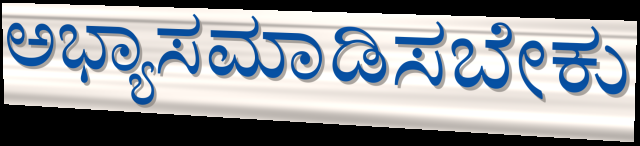
ಅಭ್ಯಾಸಮಾಡಿಸಬೇಕು